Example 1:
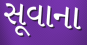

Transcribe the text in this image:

સૂવાના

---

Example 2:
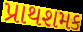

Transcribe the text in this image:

પ્રાથશમક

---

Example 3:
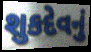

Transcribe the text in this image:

શુકદેવનું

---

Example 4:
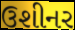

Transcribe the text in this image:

ઉશીનર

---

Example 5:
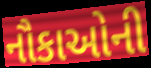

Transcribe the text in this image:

નૌકાઓની